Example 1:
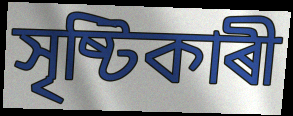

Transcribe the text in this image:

সৃষ্টিকাৰী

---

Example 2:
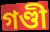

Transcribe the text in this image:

গণ্ডী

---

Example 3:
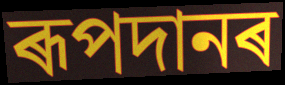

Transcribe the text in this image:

ৰূপদানৰ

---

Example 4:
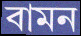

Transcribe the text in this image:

বামন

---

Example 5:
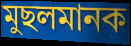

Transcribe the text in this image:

মুছলমানক